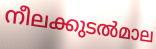
നീലക്കുടൽമാല